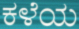
ಕಳೆಯ